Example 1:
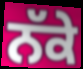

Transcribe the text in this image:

ਨੱਕੇ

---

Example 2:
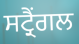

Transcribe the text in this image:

ਸਟ੍ਰੈਂਗਲ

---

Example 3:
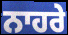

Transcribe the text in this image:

ਨਾਹਰੇ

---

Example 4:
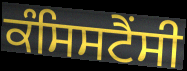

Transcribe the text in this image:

ਕੰਸਿਸਟੈਂਸੀ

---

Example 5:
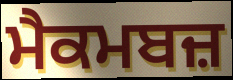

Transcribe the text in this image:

ਮੈਕਮਬਜ਼